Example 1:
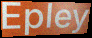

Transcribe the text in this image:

Epley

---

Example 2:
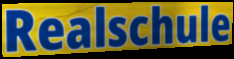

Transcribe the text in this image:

Realschule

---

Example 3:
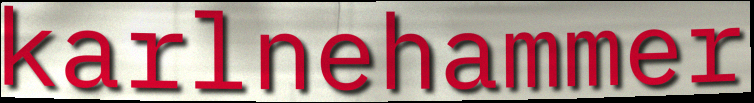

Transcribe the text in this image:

karlnehammer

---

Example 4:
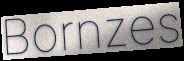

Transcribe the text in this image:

Bornzes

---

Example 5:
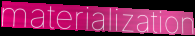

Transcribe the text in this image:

materialization